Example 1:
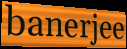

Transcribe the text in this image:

banerjee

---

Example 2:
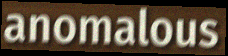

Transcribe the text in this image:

anomalous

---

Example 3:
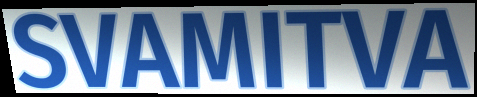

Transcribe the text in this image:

SVAMITVA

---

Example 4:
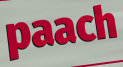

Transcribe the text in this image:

paach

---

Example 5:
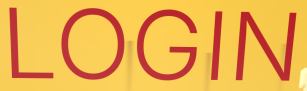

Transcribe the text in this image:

LOGIN